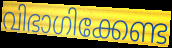
വിഭാഗിക്കേണ്ട